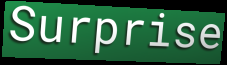
Surprise